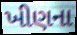
ખીણના